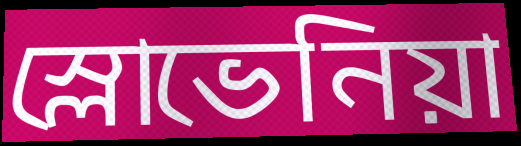
স্লোভেনিয়া